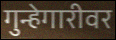
गुन्हेगारीवर